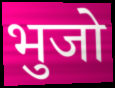
भुजो